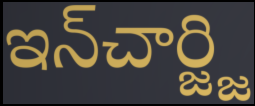
ఇన్‌చార్జ్జి